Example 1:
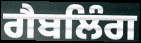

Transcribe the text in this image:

ਗੈਬਲਿੰਗ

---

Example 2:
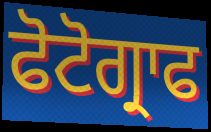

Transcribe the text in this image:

ਫੋਟੋਗ੍ਰਾਫ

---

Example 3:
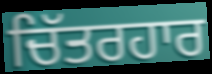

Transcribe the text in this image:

ਚਿੱਤਰਹਾਰ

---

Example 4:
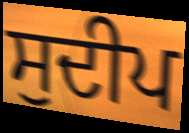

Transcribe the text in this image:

ਸੁਦੀਪ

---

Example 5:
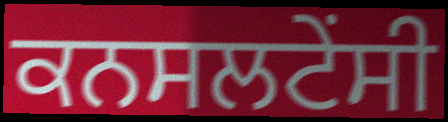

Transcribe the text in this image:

ਕਨਸਲਟੇਂਸੀ